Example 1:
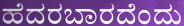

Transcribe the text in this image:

ಹೆದರಬಾರದೆಂದು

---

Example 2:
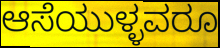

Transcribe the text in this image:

ಆಸೆಯುಳ್ಳವರೂ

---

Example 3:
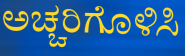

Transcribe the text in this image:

ಅಚ್ಚರಿಗೊಳಿಸಿ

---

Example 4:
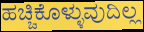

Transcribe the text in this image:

ಹಚ್ಚಿಕೊಳ್ಳುವುದಿಲ್ಲ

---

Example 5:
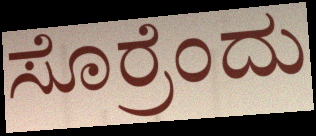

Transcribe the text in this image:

ಸೊರ್ರೆಂದು